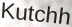
Kutchh